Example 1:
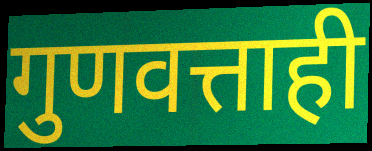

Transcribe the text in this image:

गुणवत्ताही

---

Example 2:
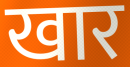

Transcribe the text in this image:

खार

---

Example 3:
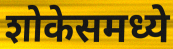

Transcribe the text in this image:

शोकेसमध्ये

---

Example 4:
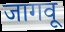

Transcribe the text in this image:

जागवू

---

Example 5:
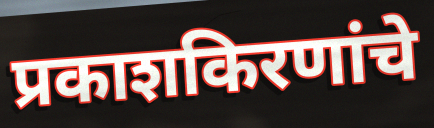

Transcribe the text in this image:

प्रकाशकिरणांचे